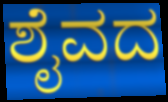
ಶೈವದ